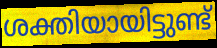
ശക്തിയായിട്ടുണ്ട്